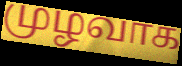
முழவாக